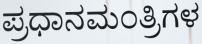
ಪ್ರಧಾನಮಂತ್ರಿಗಳ